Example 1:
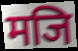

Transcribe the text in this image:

मजि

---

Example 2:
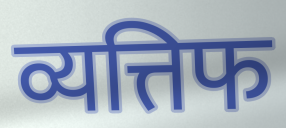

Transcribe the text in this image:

व्यत्तिफ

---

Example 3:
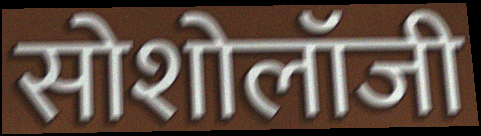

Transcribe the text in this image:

सोशोलॉजी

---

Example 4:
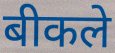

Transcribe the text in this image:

बीकले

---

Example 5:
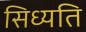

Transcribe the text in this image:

सिध्यति